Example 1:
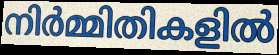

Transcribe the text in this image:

നിർമ്മിതികളിൽ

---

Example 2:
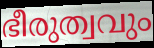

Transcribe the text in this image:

ഭീരുത്വവും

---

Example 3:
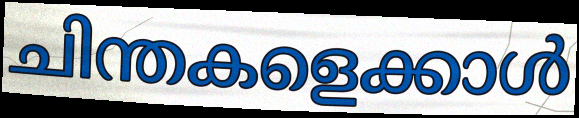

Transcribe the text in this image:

ചിന്തകളെക്കാൾ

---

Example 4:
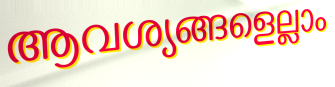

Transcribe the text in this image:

ആവശ്യങ്ങളെല്ലാം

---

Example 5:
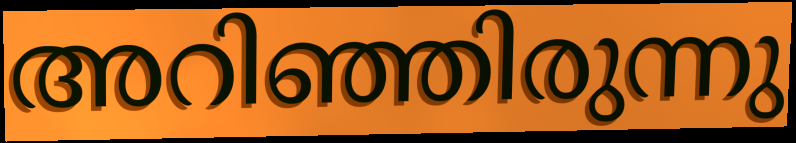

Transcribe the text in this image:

അറിഞ്ഞിരുന്നു